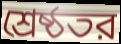
শ্রেষ্ঠতর